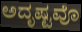
ಅದೃಷ್ಟವೊ